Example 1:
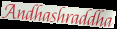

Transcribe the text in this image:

Andhashraddha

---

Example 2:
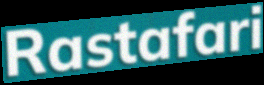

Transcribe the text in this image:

Rastafari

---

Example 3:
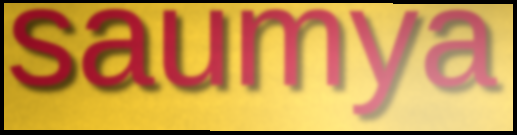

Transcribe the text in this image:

saumya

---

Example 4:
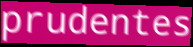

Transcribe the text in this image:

prudentes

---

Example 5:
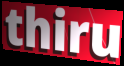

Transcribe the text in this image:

thiru